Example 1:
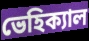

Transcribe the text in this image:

ভেহিক্যাল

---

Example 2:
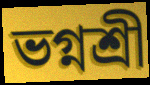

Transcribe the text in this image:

ভগ্নশ্রী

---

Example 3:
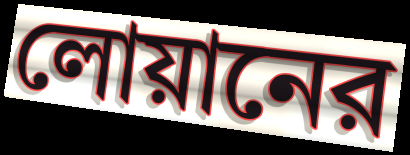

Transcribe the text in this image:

লোয়ানের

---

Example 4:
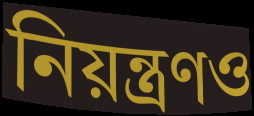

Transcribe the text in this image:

নিয়ন্ত্রণও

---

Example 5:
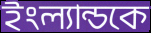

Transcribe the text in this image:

ইংল্যান্ডকে